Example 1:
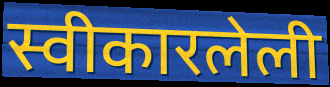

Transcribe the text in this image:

स्वीकारलेली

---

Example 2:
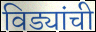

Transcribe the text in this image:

विड्यांची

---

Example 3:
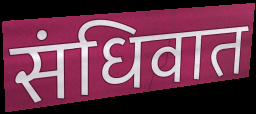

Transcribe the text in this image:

संधिवात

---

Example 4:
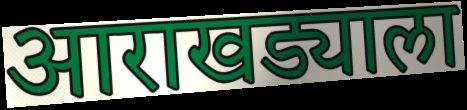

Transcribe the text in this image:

आराखड्याला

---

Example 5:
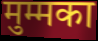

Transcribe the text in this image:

मुम्मका